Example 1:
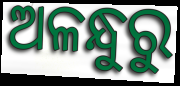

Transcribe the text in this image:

ଅଳନ୍ଧୁରୁ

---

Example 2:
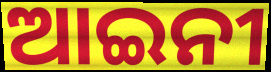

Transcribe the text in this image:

ଆଇନୀ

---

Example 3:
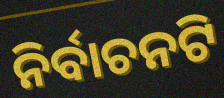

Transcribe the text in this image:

ନିର୍ବାଚନଟି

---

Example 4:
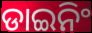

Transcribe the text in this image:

ଡାଇନିଂ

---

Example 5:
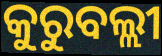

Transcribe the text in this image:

କୁରୁବଲ୍ଲୀ